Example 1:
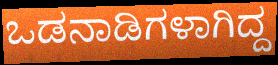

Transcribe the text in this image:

ಒಡನಾಡಿಗಳಾಗಿದ್ದ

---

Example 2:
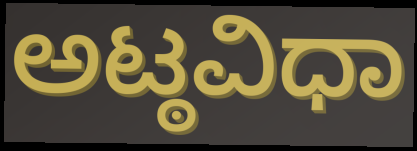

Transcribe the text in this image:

ಅಟ್ಠವಿಧಾ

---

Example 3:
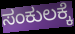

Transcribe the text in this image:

ಸಂಕುಲಕ್ಕೆ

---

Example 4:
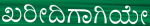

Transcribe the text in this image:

ಖರೀದಿಗಾಗಿಯೇ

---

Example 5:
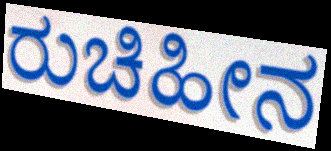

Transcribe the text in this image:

ರುಚಿಹೀನ